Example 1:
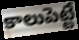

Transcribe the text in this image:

కాలుపెట్టే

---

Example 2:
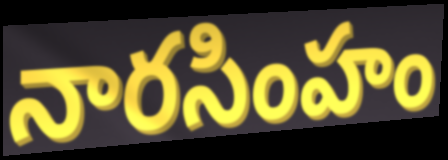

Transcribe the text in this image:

నారసింహం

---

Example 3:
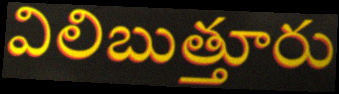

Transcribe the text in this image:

విలిబుత్తూరు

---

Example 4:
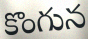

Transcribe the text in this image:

కొంగున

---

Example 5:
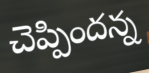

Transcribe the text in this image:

చెప్పిందన్న